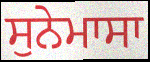
ਸੁਨੇਮਾਸਾ